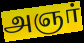
அஞர்